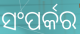
ସଂପର୍କର